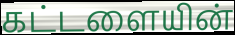
கட்டளையின்